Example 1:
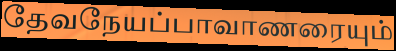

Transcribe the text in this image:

தேவநேயப்பாவாணரையும்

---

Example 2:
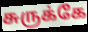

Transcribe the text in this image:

சுருக்கே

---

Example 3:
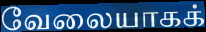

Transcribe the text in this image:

வேலையாகக்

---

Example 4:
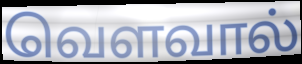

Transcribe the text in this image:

வெளவால்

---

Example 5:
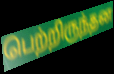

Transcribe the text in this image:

பெற்றிருந்தன